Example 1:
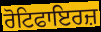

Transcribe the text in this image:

ਰੋਟਿਫਾਇਰਜ਼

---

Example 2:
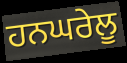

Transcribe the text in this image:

ਹਨਘਰੇਲੂ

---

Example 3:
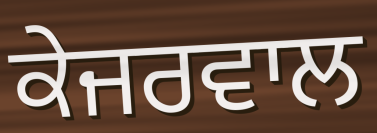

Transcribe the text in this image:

ਕੇਜਰਵਾਲ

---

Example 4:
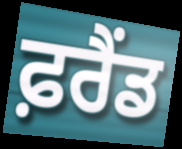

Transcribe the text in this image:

ਫ਼ਰੈਂਡ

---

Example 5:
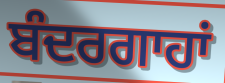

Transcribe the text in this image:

ਬੰਦਰਗਾਹਾਂ